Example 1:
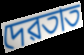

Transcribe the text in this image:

দেৱতাত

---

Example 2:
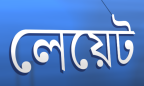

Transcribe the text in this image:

লেয়েট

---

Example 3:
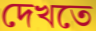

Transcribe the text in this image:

দেখতে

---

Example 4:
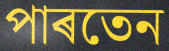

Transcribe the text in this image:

পাৰতেন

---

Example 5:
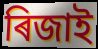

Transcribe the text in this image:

ৰিজাই